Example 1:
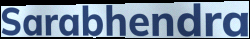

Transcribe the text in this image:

Sarabhendra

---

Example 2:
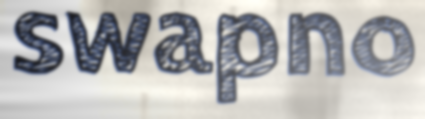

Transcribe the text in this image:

swapno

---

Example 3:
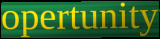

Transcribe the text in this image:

opertunity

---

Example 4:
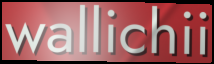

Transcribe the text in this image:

wallichii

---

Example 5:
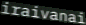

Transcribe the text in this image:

iraivanai